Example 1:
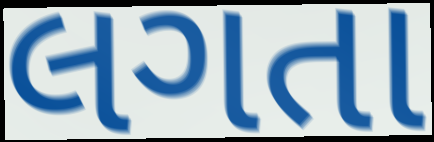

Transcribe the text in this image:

લગતા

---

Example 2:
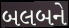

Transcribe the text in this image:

બલબને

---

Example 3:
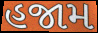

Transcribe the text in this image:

હજામ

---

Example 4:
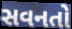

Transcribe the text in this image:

સવનતો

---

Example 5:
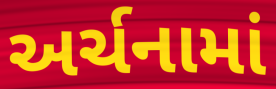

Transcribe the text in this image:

અર્ચનામાં